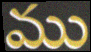
ము